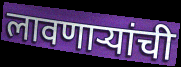
लावणाऱ्यांची